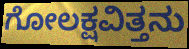
ಗೋಲಕ್ಷವಿತ್ತನು